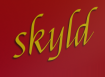
skyld